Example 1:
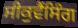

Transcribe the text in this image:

ਸੀਕੁਵੈਂਸਿੰਗ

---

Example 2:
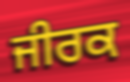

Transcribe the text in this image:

ਜੀਰਕ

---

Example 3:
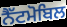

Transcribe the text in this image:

ਨੈੱਟਮੋਬਿਲ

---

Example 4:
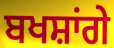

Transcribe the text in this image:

ਬਖਸ਼ਾਂਗੇ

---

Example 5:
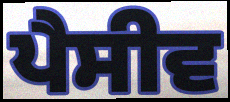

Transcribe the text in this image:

ਪੈਸੀਵ